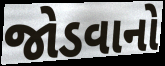
જોડવાનો